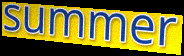
summer